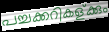
പച്ചക്കറികള്ക്കും